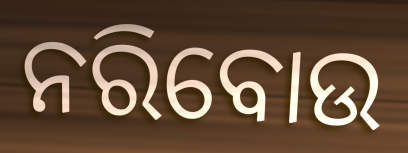
ନରିବୋଉ